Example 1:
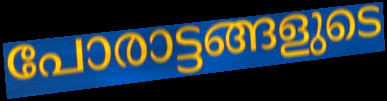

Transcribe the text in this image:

പോരാട്ടങ്ങളുടെ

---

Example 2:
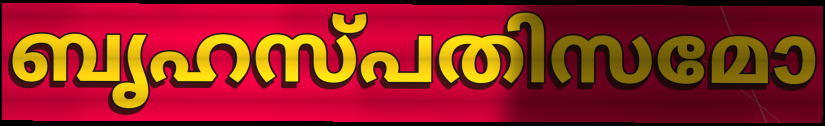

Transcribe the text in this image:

ബൃഹസ്പതിസമോ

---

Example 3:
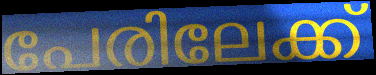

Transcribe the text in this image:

പേരിലേക്ക്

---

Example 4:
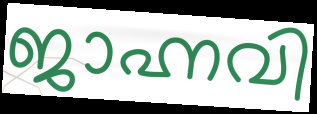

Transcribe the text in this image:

ജാഹ്നവി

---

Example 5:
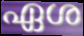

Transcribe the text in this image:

ഏശ